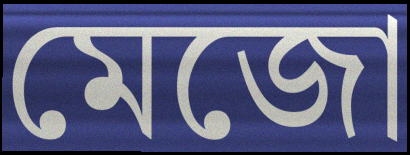
মেজো